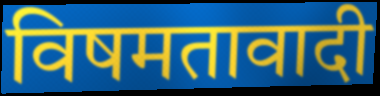
विषमतावादी